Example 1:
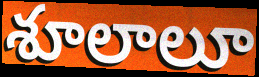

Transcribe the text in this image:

శూలాలూ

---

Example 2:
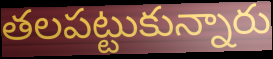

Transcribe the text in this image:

తలపట్టుకున్నారు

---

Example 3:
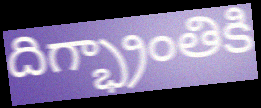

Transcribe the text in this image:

దిగ్భ్రాంతికి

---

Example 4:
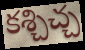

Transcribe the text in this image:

కశ్చిచ్చ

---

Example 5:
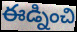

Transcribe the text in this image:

ఈడ్నించి